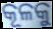
କୂଳକୁ